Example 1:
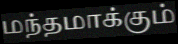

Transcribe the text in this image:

மந்தமாக்கும்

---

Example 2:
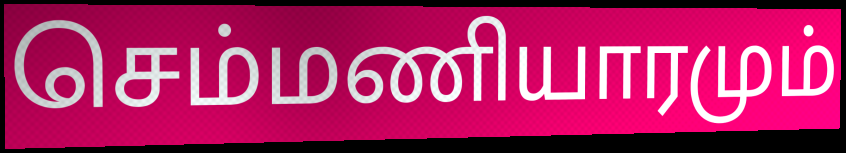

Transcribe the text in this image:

செம்மணியாரமும்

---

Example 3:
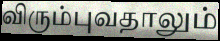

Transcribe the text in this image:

விரும்புவதாலும்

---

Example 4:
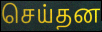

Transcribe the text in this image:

செய்தன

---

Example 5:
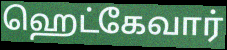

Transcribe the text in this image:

ஹெட்கேவார்